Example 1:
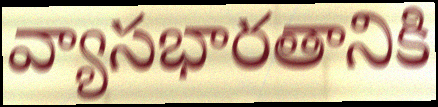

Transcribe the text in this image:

వ్యాసభారతానికి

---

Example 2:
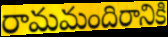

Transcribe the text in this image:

రామమందిరానికి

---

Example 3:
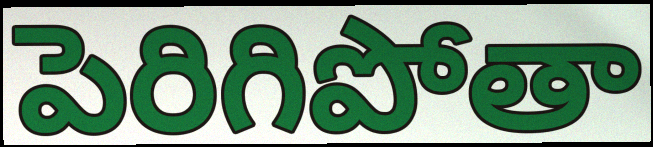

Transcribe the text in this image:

పెరిగిపోతా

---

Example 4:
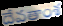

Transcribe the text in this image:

దేవతాంశ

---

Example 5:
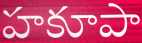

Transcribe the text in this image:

హకూపా